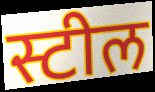
स्टील